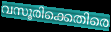
വസൂരിക്കെതിരെ